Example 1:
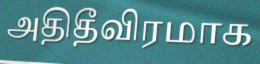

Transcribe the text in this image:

அதிதீவிரமாக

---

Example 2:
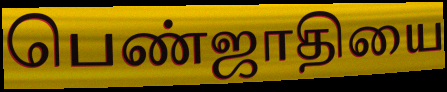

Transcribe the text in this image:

பெண்ஜாதியை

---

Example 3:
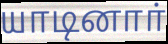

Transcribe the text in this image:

யாடினார்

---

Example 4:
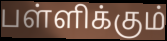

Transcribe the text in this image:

பள்ளிக்கும்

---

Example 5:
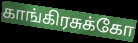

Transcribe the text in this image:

காங்கிரசுக்கோ